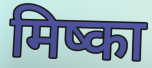
मिष्का